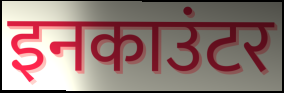
इनकाउंटर